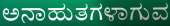
ಅನಾಹುತಗಳಾಗುವ